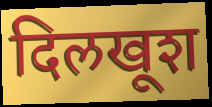
दिलखूश